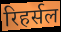
रिहर्सल